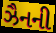
ઝૈનની